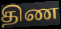
திண